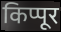
किप्पूर